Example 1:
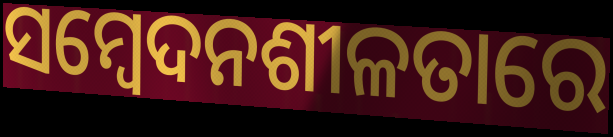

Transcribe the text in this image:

ସମ୍ବେଦନଶୀଳତାରେ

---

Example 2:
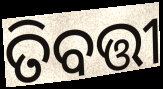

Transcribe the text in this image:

ତିବତ୍ତୀ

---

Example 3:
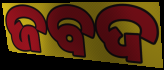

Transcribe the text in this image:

ଜବଦ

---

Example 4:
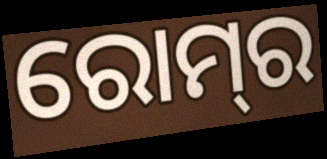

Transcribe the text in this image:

ରୋମ୍‍ର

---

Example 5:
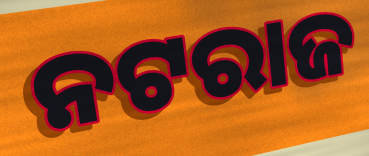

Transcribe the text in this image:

ନଟରାଜ